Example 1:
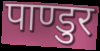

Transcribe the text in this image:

पाण्डुर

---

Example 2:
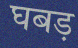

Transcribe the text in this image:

घबड़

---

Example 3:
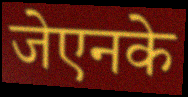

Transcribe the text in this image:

जेएनके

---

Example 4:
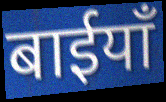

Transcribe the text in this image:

बाईयाँ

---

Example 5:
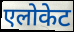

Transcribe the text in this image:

एलोकेट